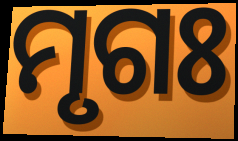
ମୃଗଃ